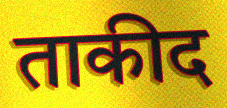
ताकीद